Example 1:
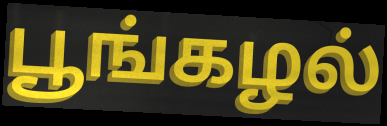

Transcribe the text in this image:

பூங்கழல்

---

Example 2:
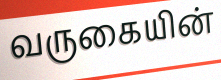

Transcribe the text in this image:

வருகையின்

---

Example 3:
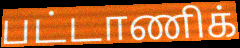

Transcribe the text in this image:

பட்டாணிக்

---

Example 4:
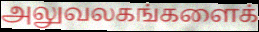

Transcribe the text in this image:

அலுவலகங்களைக்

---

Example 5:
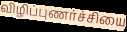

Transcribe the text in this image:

விழிப்புணர்ச்சியை